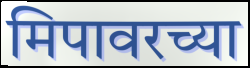
मिपावरच्या